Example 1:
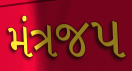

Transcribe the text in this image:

મંત્રજપ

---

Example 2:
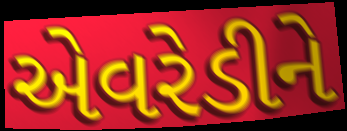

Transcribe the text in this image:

એવરેડીને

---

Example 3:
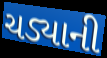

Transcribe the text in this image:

ચડ્યાની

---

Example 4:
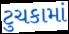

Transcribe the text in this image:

ટુચકામાં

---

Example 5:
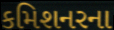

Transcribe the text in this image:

કમિશનરના